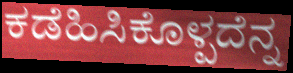
ಕಡೆಹಿಸಿಕೊಳ್ಪದೆನ್ನ